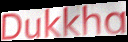
Dukkha